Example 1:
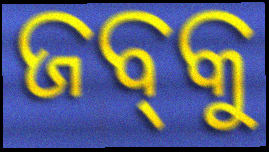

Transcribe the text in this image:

ଜବ୍‍କୁ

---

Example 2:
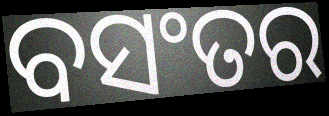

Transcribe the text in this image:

ବସଂତର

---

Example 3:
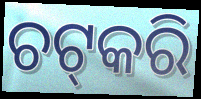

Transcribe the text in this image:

ଚଟ୍‌କରି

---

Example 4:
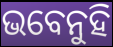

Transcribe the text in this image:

ଭବେନୁହି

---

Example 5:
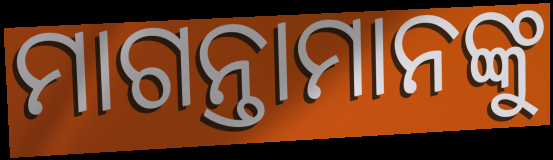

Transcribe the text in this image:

ମାଗନ୍ତାମାନଙ୍କୁ